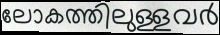
ലോകത്തിലുള്ളവർ